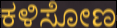
ಕಳಿಸೋಣ